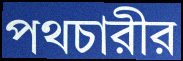
পথচারীর